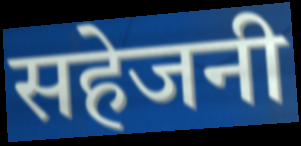
सहेजनी